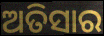
ଅତିସାର